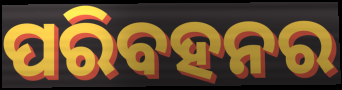
ପରିବହନର